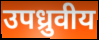
उपध्रुवीय